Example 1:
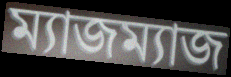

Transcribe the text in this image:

ম্যাজম্যাজ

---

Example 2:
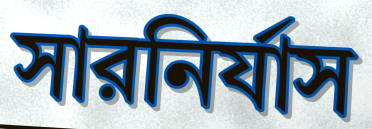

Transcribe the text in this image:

সারনির্যাস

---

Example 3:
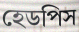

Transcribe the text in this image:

হেডপিস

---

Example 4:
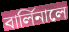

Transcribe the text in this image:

বার্লিনালে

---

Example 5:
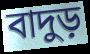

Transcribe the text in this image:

বাদুড়